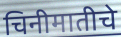
चिनीमातीचे